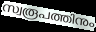
സ്വരൂപത്തിനും